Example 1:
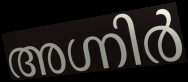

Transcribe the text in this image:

അഗ്നിർ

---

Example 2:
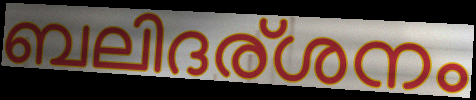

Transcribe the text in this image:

ബലിദര്ശനം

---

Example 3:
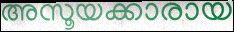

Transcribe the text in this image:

അസൂയക്കാരായ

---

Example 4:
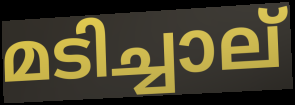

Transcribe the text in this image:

മടിച്ചാല്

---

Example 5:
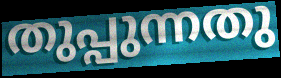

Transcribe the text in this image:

തുപ്പുന്നതു